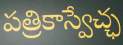
పత్రికాస్వేచ్ఛ